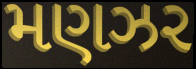
મણઝર